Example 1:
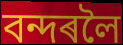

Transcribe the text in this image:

বন্দৰলৈ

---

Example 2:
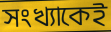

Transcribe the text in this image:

সংখ্যাকেই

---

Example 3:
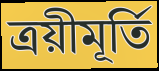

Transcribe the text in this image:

ত্ৰয়ীমূৰ্তি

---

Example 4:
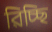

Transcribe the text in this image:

ৱিচ্ছি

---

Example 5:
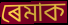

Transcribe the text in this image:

ৰেমাক